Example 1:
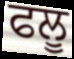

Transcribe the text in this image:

ਫਲੂ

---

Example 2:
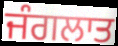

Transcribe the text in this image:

ਜੰਗਲਾਤ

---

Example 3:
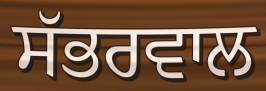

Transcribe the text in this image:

ਸੱਭਰਵਾਲ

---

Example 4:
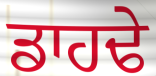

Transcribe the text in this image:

ਡਾਹਢੇ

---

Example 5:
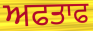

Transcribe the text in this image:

ਅਫਤਾਫ